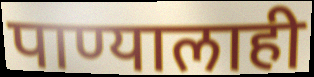
पाण्यालाही